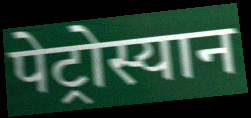
पेट्रोस्यान